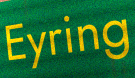
Eyring